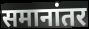
समानांतर